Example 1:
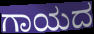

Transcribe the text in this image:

ಗಾಯದ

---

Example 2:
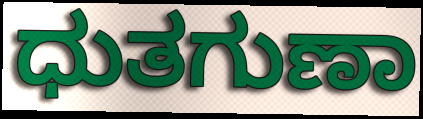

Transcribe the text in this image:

ಧುತಗುಣಾ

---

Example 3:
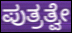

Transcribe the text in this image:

ಪುತ್ರತ್ವೇ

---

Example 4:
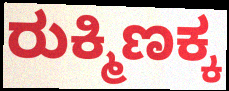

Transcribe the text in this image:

ರುಕ್ಮಿಣಕ್ಕ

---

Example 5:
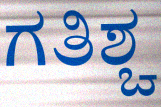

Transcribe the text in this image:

ಗತಿಶ್ಚ